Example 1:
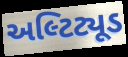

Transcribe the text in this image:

અલ્ટિટ્યૂડ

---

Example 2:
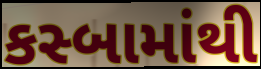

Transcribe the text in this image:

કસ્બામાંથી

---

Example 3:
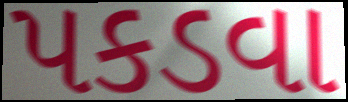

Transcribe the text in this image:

પકડવા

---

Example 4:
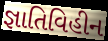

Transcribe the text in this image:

જ્ઞાતિવિહીન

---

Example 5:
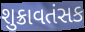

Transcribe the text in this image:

શુક્રાવતંસક